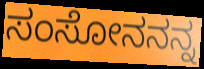
ಸಂಸೋನನನ್ನ